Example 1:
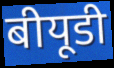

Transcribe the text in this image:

बीयूडी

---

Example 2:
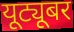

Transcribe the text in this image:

यूट्यूबर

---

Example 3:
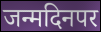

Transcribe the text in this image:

जन्मदिनपर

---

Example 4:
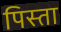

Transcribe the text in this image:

पिस्ता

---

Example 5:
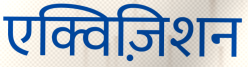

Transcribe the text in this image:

एक्विज़िशन